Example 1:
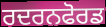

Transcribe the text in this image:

ਰਦਰਨਫੋਰਡ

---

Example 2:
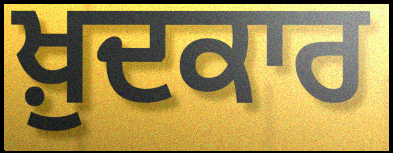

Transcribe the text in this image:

ਖ਼ੁਦਕਾਰ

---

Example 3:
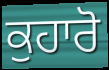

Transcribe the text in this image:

ਕੁਹਾਰੋ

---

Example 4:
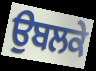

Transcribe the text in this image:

ਉਬਲਕੇ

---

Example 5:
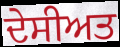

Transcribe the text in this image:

ਦੇਸੀਅਤ